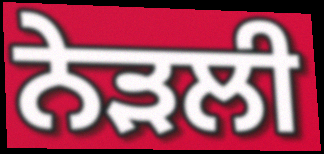
ਨੇੜਲੀ